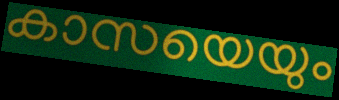
കാസയെയും